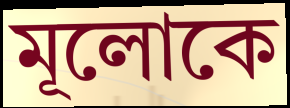
মূলোকে